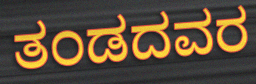
ತಂಡದವರ